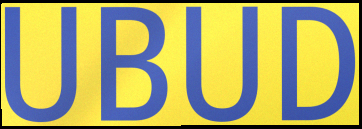
UBUD